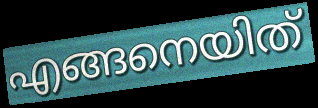
എങ്ങനെയിത്